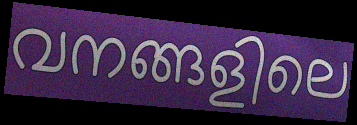
വനങ്ങളിലെ